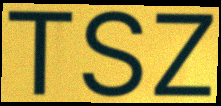
TSZ